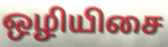
ஒழியிசை